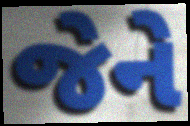
જેને